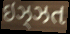
ઇઝ્ઝત